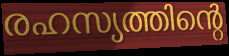
രഹസ്യത്തിന്റെ